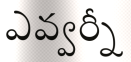
ఎవ్వర్నీ